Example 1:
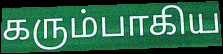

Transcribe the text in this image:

கரும்பாகிய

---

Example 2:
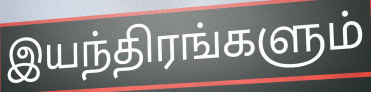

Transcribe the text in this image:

இயந்திரங்களும்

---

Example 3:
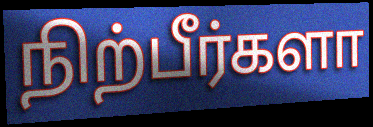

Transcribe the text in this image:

நிற்பீர்களா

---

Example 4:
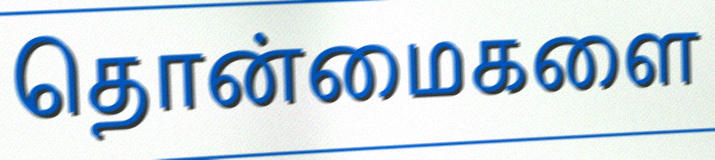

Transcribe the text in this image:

தொன்மைகளை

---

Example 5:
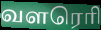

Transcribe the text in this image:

வளரெரி